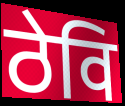
ठेवि